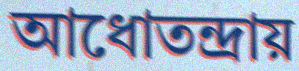
আধোতন্দ্রায়